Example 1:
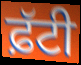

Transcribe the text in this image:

ਫ਼ੱਟੀ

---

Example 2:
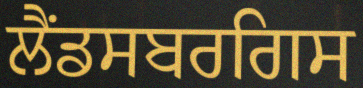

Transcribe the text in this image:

ਲੈਂਡਸਬਰਗਿਸ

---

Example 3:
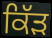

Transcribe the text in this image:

ਕਿੱੜ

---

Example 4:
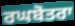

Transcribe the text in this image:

ਰਘਬੋਤਰਾ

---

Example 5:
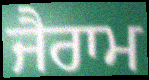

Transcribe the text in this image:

ਜੈਰਾਮ